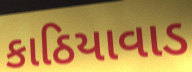
કાઠિયાવાડ